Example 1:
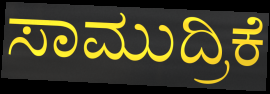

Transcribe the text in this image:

ಸಾಮುದ್ರಿಕೆ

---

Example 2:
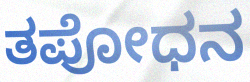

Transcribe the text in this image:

ತಪೋಧನ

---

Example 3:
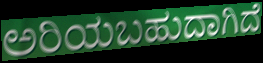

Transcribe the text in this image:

ಅರಿಯಬಹುದಾಗಿದೆ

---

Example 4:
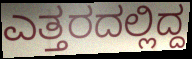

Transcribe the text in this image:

ಎತ್ತರದಲ್ಲಿದ್ದ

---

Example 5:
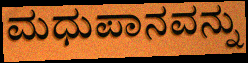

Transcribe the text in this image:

ಮಧುಪಾನವನ್ನು